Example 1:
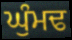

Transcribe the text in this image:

ਘੁੰਮਢ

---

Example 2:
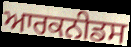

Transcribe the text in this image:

ਆਰਕਨੀਡਸ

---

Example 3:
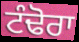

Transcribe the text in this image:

ਟੰਢੋਰਾ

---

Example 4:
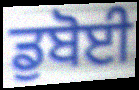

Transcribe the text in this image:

ਡੁਬੋਈ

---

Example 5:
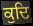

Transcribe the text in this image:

ਕੁਦਿ